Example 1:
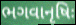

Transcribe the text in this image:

ભગવાનૃષિઃ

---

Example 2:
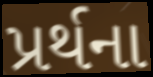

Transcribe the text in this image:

પ્રર્થના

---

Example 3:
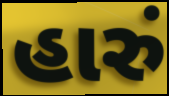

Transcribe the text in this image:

હારું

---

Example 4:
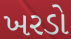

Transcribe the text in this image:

ખરડો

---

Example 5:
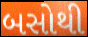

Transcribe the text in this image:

બસોથી